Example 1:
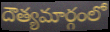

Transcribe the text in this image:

దౌత్యమార్గంలో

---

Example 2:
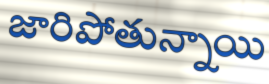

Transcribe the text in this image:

జారిపోతున్నాయి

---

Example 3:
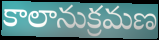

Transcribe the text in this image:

కాలానుక్రమణ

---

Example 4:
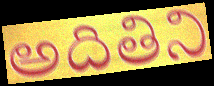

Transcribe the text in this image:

అదితిని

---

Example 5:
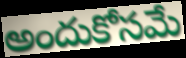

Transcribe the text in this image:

అందుకోసమే